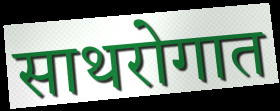
साथरोगात